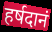
हर्षदानं